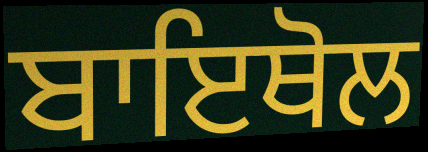
ਬਾਇਥੋਲ